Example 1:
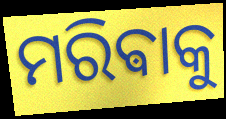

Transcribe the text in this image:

ମରିଵାକୁ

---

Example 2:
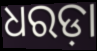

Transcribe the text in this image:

ଧରଡ଼ା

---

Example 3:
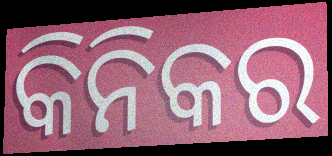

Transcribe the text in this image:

କିନିକର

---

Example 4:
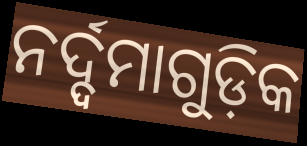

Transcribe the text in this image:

ନର୍ଦ୍ଦମାଗୁଡ଼ିକ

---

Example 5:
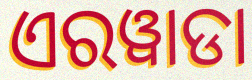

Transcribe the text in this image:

ଏରୱାଡା